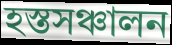
হস্তসঞ্চালন